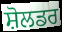
ਸ਼ੋਲਡਰ